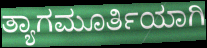
ತ್ಯಾಗಮೂರ್ತಿಯಾಗಿ